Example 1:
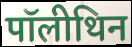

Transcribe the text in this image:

पॉलीथिन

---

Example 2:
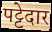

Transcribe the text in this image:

पट्टेदार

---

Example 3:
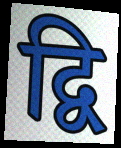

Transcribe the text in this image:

द्वि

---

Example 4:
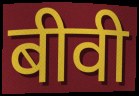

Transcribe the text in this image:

बीवी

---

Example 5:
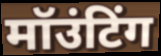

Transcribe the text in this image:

मॉउंटिंग